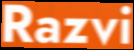
Razvi